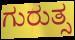
ಗುರುತ್ಸ